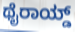
ಥೈರಾಯ್ಡ್